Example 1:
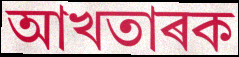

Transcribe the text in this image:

আখতাৰক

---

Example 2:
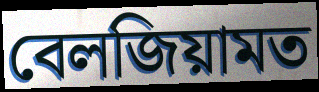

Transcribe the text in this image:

বেলজিয়ামত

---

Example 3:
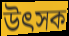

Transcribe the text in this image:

উৎসক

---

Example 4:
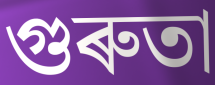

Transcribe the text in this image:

গুৰুতা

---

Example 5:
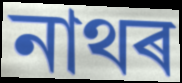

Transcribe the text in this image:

নাথৰ